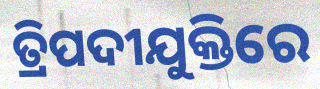
ତ୍ରିପଦୀଯୁକ୍ତିରେ